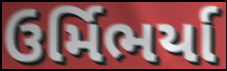
ઉર્મિભર્યા